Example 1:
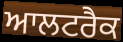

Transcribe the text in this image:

ਆਲਟਰੈਕ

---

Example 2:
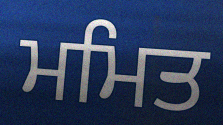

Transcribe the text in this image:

ਮਮਿਤ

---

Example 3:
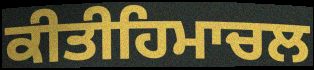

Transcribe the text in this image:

ਕੀਤੀਹਿਮਾਚਲ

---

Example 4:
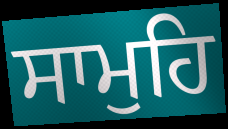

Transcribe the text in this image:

ਸਾਮੁਹਿ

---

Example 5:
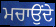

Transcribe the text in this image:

ਮਚਾਉਂਦੇ